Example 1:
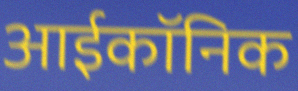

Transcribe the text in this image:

आईकॉनिक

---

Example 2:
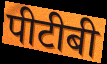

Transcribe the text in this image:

पीटीबी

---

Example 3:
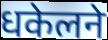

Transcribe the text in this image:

धकेलने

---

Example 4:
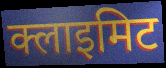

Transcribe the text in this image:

क्लाइमिट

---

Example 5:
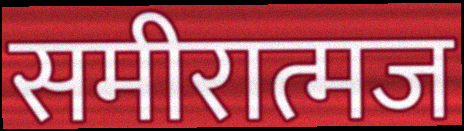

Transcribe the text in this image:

समीरात्मज